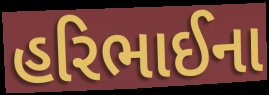
હરિભાઈના